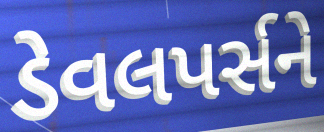
ડેવલપર્સને